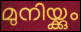
മുനിയ്ക്കും